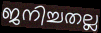
ജനിച്ചതല്ല